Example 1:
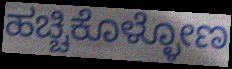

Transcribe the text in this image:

ಹಚ್ಚಿಕೊಳ್ಳೋಣ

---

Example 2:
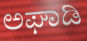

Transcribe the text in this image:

ಅಘಾಡಿ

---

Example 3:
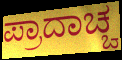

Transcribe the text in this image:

ಪ್ರಾದಾಚ್ಚ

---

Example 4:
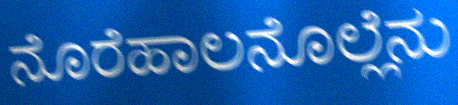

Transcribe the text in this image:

ನೊರೆಹಾಲನೊಲ್ಲೆನು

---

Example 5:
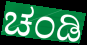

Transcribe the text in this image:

ಚಂಡಿ